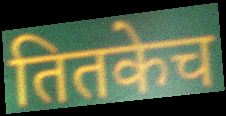
तितकेच